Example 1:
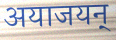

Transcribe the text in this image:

अयाजयन्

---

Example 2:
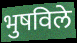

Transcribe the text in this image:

भुषविले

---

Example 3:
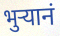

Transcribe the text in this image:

भुऱ्यानं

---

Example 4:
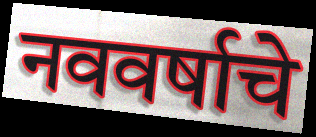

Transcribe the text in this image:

नववर्षाचे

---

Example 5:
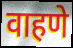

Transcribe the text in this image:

वाहणे